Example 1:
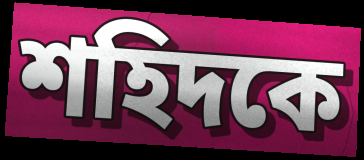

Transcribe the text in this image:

শহিদকে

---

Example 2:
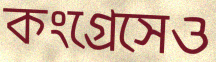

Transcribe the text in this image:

কংগ্রেসেও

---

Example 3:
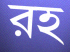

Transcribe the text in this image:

রহ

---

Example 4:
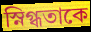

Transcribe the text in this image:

স্নিগ্ধতাকে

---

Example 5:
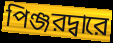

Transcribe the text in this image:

পিঞ্জরদ্বারে